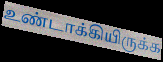
உண்டாக்கியிருக்க